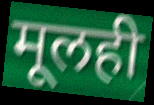
मूलही